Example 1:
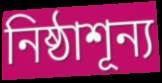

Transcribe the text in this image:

নিষ্ঠাশূন্য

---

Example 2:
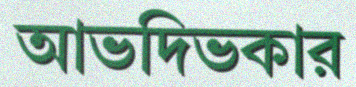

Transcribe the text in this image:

আভদিভকার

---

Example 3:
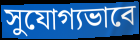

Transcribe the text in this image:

সুযোগ্যভাবে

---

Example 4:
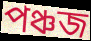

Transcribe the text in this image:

পঞ্চজ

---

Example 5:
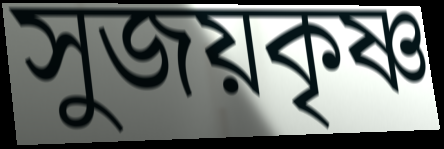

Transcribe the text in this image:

সুজয়কৃষ্ণ